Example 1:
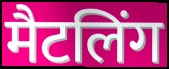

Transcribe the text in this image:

मैटलिंग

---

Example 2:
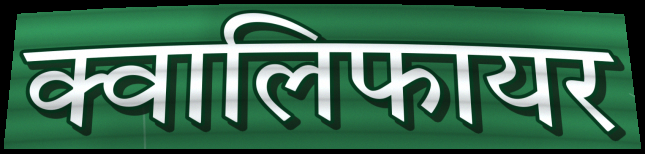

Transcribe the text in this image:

क्वालिफायर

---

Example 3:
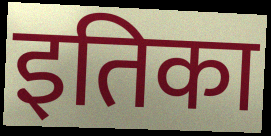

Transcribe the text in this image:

इतिका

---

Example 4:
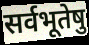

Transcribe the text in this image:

सर्वभूतेषु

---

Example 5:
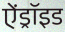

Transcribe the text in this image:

ऐंड्रॉइड